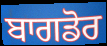
ਬਾਗਡੋਰ